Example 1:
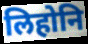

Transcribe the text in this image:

लिहोनि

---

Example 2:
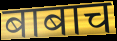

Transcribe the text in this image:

बाबाच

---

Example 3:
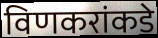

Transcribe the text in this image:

विणकरांकडे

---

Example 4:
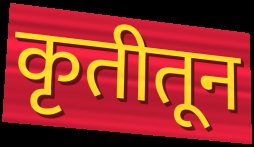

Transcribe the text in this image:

कृतीतून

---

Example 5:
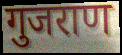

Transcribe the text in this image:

गुजराण